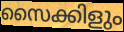
സൈക്കിളും